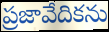
ప్రజావేదికను